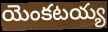
యెంకటయ్య